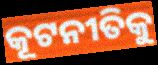
କୂଟନୀତିକୁ